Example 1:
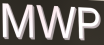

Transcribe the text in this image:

MWP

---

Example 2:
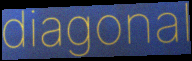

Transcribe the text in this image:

diagonal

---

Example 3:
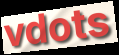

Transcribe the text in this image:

vdots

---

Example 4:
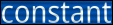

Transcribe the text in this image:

constant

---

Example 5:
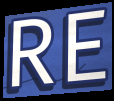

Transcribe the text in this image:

RE